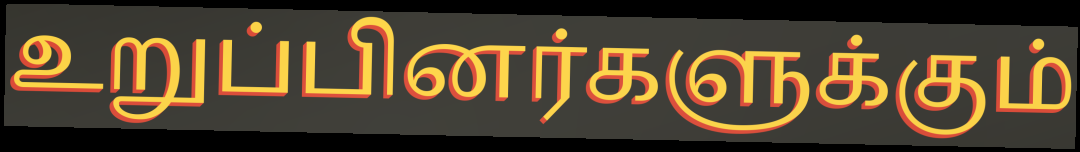
உறுப்பினர்களுக்கும்